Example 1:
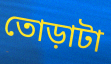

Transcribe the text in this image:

তোড়াটা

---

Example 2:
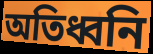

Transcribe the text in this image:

অতিধ্বনি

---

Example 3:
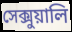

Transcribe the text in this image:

সেক্সুয়ালি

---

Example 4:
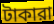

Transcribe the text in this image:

টাকারা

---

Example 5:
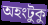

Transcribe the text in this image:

অহংটুকু